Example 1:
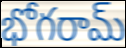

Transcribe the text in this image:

భోగరామ్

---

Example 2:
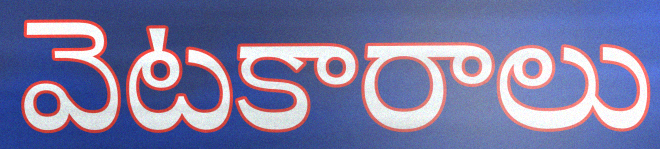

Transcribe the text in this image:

వెటకారాలు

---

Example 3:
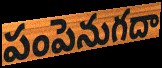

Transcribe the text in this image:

పంపెనుగదా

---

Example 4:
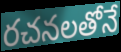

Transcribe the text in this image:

రచనలతోనే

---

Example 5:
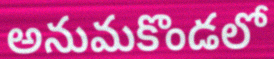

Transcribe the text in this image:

అనుమకొండలో